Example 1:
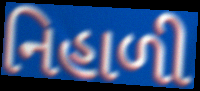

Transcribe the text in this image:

નિહાળી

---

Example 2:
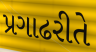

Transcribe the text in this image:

પ્રગાઢરીતે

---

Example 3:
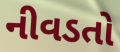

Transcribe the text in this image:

નીવડતો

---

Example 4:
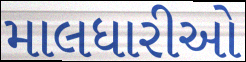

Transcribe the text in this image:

માલધારીઓ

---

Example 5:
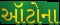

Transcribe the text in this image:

ઑટોના